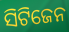
ସିଟିଜେନ